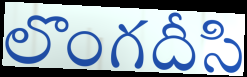
లొంగదీసి